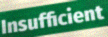
Insufficient